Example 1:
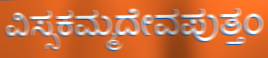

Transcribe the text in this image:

ವಿಸ್ಸಕಮ್ಮದೇವಪುತ್ತಂ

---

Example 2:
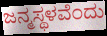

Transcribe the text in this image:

ಜನ್ಮಸ್ಥಳವೆಂದು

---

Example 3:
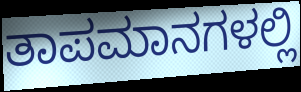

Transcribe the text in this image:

ತಾಪಮಾನಗಳಲ್ಲಿ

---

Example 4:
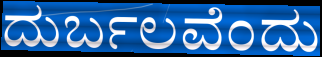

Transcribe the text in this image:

ದುರ್ಬಲವೆಂದು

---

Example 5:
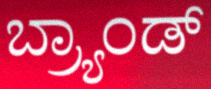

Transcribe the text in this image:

ಬ್ರ್ಯಾಂಡ್